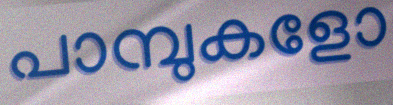
പാമ്പുകളോ